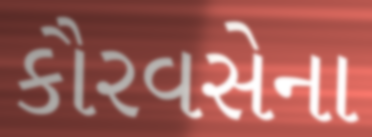
કૌરવસેના